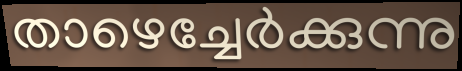
താഴെച്ചേർക്കുന്നു